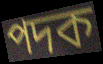
পদক